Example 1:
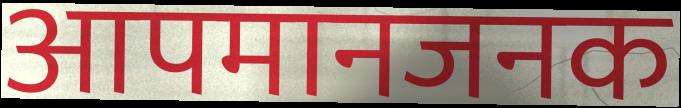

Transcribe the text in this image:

आपमानजनक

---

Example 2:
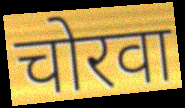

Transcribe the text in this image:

चोरवा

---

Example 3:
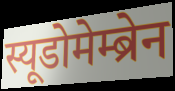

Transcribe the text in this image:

स्यूडोमेम्ब्रेन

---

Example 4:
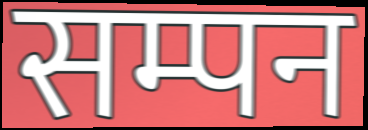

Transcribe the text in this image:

सम्पन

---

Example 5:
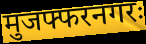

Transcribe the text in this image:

मुजफ्फरनगरः